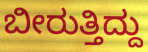
ಬೀರುತ್ತಿದ್ದು